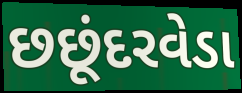
છછૂંદરવેડા